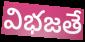
విభజతే